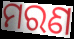
ମରଣ